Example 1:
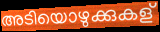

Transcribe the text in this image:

അടിയൊഴുക്കുകള്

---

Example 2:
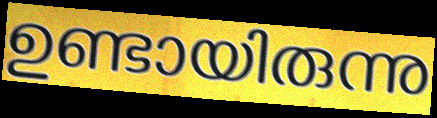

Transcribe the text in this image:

ഉണ്ടായിരുന്നു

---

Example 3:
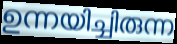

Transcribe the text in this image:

ഉന്നയിച്ചിരുന്ന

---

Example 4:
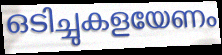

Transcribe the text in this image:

ഒടിച്ചുകളയേണം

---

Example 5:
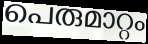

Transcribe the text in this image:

പെരുമാറ്റം